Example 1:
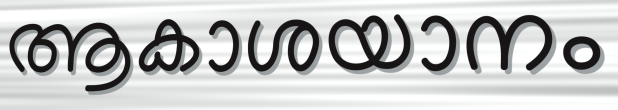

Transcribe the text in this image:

ആകാശയാനം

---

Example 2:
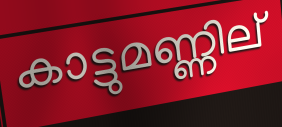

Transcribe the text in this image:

കാട്ടുമണ്ണില്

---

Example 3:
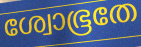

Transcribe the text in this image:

ശ്വോഭൂതേ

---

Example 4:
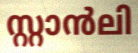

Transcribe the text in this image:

സ്റ്റാൻലി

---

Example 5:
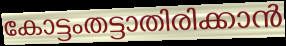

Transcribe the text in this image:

കോട്ടംതട്ടാതിരിക്കാൻ